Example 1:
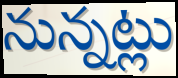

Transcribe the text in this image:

నున్నట్లు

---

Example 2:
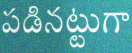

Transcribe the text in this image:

పడినట్టుగా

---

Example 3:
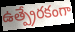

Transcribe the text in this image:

ఉత్ప్రేరకంగా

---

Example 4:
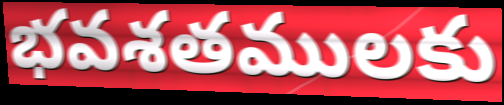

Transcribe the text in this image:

భవశతములకు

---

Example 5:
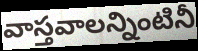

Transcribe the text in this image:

వాస్తవాలన్నింటినీ